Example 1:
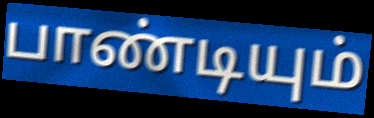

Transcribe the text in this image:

பாண்டியும்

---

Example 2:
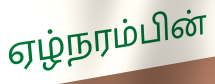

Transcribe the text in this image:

ஏழ்நரம்பின்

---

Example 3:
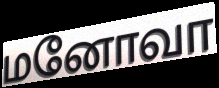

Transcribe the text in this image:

மனோவா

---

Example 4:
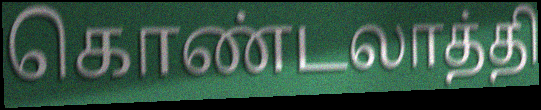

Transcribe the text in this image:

கொண்டலாத்தி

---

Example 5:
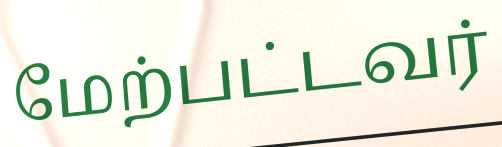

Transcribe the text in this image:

மேற்பட்டவர்